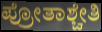
ಪ್ರೋತಾಶ್ಚೇತಿ